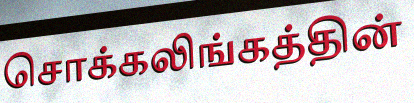
சொக்கலிங்கத்தின்